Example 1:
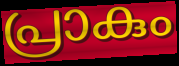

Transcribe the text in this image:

പ്രാകും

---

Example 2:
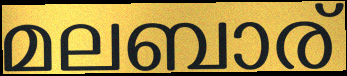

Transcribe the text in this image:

മലബാര്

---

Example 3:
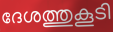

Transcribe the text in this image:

ദേശത്തുകൂടി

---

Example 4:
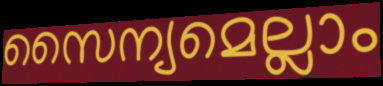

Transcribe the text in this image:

സൈന്യമെല്ലാം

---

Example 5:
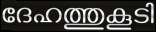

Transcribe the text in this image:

ദേഹത്തുകൂടി